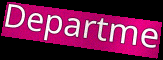
Departme